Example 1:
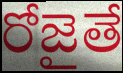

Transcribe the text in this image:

రోజైతే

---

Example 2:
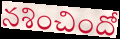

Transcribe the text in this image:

నశించిందో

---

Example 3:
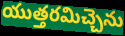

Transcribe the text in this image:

యుత్తరమిచ్చెను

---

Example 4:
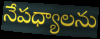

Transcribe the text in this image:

నేపధ్యాలను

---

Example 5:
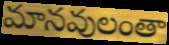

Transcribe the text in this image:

మానవులంతా